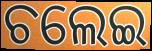
ଚଲେଇ